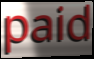
paid